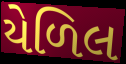
યેળિલ